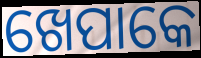
ଖେପାକେ